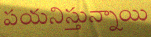
పయనిస్తున్నాయి